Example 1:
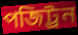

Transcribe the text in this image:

পজিট্রন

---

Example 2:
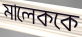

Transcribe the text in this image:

মালেককে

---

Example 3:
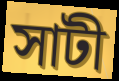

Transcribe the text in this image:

সাটী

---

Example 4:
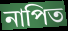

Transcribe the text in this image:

নাপিত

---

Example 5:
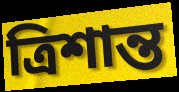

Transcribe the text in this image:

ত্রিশান্ত